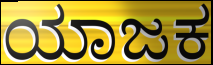
ಯಾಜಕ